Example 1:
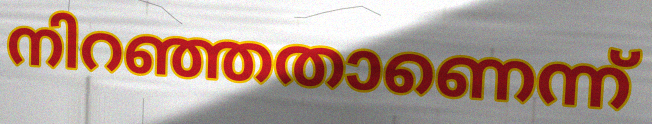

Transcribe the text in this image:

നിറഞ്ഞതാണെന്ന്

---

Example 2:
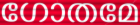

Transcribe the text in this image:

ഗോതമേ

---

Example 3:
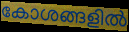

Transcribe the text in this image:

കോശങ്ങളിൽ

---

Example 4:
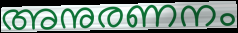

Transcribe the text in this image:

അനുരണനം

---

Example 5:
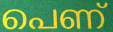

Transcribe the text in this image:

പെണ്